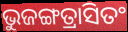
ଭୁଜଙ୍ଗତ୍ରାସିତଂ